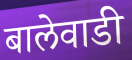
बालेवाडी